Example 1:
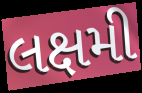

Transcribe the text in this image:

લક્ષમી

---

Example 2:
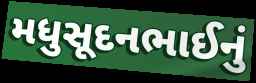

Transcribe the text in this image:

મધુસૂદનભાઈનું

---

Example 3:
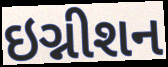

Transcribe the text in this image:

ઇગ્નીશન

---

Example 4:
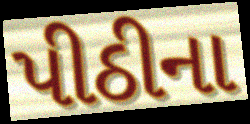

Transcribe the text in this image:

પીઠીના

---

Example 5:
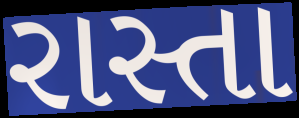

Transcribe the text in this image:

રાસ્તા